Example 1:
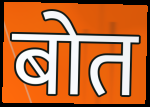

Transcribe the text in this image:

बोत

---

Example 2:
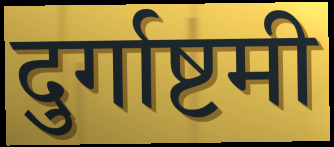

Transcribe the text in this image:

दुर्गाष्टमी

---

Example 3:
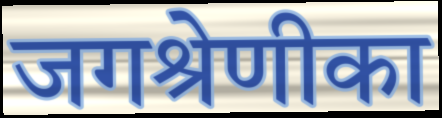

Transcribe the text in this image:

जगश्रेणीका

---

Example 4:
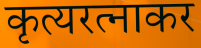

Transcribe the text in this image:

कृत्यरत्नाकर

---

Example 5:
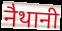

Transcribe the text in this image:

नैथानी